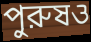
পুরুষও